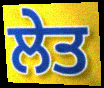
ਲੇਤ